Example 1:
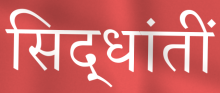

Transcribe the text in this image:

सिद्धांतीं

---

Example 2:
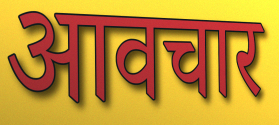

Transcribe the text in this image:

आवचार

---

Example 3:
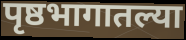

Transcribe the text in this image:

पृष्ठभागातल्या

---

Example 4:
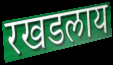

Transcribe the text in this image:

रखडलाय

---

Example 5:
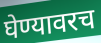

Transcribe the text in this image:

घेण्यावरच